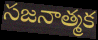
సజనాత్మక